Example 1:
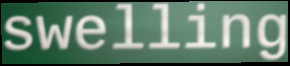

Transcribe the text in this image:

swelling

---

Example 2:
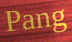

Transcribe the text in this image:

Pang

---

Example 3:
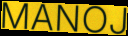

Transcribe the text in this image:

MANOJ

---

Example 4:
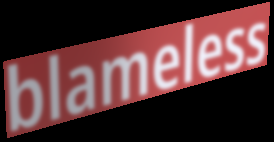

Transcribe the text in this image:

blameless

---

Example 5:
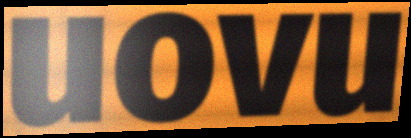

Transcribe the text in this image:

uovu